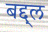
बद्द्ल